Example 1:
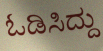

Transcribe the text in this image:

ಓಡಿಸಿದ್ದು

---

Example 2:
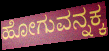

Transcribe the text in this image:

ಹೋಗುವನ್ನಕ್ಕ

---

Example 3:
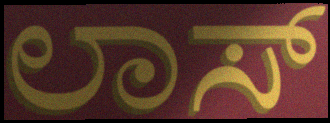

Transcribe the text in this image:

ಲಾಸ್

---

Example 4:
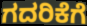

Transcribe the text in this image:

ಗದರಿಕೆಗೆ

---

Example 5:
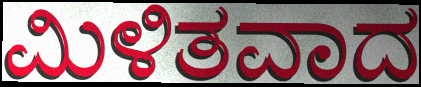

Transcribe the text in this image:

ಮಿಳಿತವಾದ